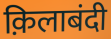
क़िलाबंदी